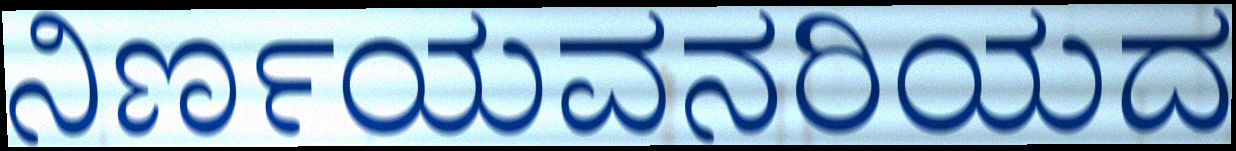
ನಿರ್ಣಯವನರಿಯದ